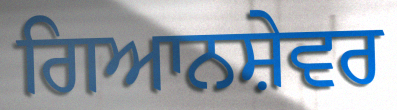
ਗਿਆਨਸ਼ੇਵਰ